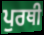
ਪੁਰਥੀ